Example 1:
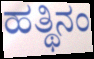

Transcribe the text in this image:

ಹತ್ಥಿನಂ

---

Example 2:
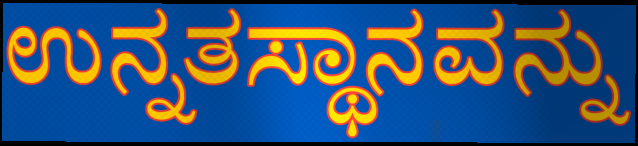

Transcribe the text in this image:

ಉನ್ನತಸ್ಥಾನವನ್ನು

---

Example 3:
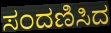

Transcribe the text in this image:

ಸಂದಣಿಸಿದ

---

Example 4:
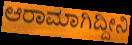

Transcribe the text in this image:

ಆರಾಮಾಗಿದ್ದೀನಿ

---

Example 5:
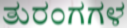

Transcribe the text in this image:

ತುರಂಗಗಳ